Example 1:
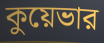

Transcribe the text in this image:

কুয়েভার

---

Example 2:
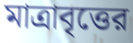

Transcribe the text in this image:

মাত্রাবৃত্তের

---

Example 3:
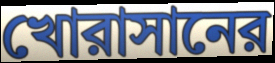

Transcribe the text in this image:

খোরাসানের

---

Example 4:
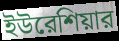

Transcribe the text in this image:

ইউরেশিয়ার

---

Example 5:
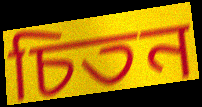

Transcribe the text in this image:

চিতন